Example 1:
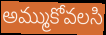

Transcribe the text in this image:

అమ్ముకోవలసి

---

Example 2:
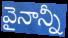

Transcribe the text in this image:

వైనాన్నీ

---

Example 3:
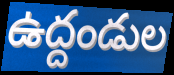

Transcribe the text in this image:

ఉద్దండుల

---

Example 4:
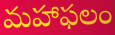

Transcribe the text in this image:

మహాఫలం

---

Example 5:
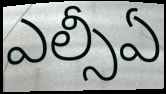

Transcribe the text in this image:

ఎల్సీఏ